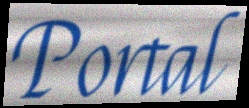
Portal